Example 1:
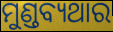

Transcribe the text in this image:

ମୁଣ୍ଡବ୍ୟଥାର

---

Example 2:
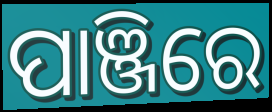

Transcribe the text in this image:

ପାଞ୍ଜିରେ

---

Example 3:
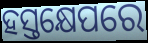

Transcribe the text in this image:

ହସ୍ତକ୍ଷେପରେ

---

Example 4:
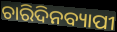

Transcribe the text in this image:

ଚାରିଦିନବ୍ୟାପୀ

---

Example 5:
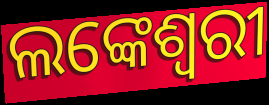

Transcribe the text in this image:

ଲଙ୍କେଶ୍ଵରୀ